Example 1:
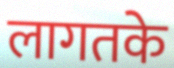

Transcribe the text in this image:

लागतके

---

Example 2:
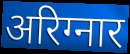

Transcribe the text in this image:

अरिग्नार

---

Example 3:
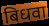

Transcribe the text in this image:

बिधवा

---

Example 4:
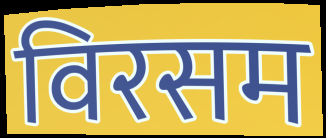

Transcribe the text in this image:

विरसम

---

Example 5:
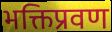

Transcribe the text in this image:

भक्तिप्रवण